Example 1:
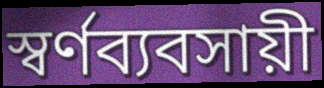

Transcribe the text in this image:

স্বর্ণব্যবসায়ী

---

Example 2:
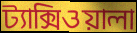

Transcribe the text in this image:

ট্যাক্সিওয়ালা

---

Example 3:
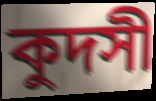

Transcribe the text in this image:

কুদসী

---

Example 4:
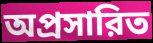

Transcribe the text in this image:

অপ্রসারিত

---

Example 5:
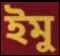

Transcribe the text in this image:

ইমু